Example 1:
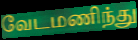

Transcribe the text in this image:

வேடமணிந்து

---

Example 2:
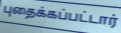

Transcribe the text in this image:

புதைக்கப்பட்டார்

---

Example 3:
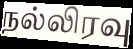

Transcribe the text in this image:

நல்லிரவு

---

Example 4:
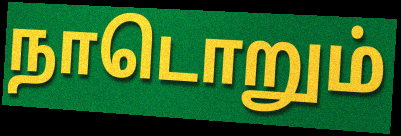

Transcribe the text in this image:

நாடொறும்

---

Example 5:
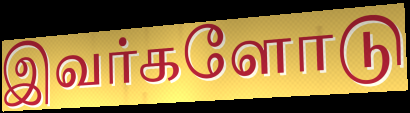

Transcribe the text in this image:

இவர்களோடு